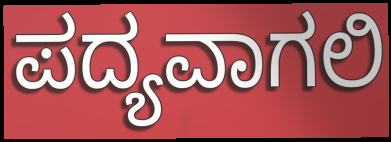
ಪದ್ಯವಾಗಲಿ